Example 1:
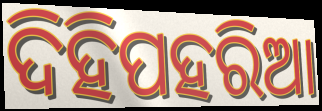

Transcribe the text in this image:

ଦିହିପହରିଆ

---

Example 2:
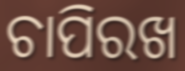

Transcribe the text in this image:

ଚାପିରଖ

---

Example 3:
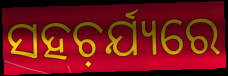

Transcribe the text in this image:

ସହଚ଼ର୍ଯ୍ୟରେ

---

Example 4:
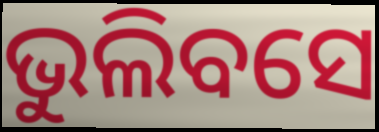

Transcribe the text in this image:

ଭୁଲିବସେ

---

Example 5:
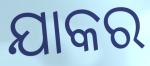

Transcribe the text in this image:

ଯାକର